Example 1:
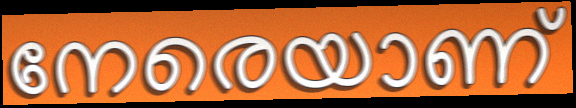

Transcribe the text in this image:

നേരെയാണ്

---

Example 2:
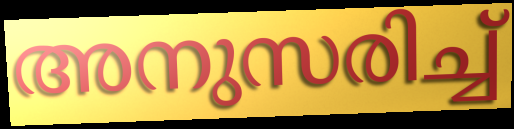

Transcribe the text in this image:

അനുസരിച്ച്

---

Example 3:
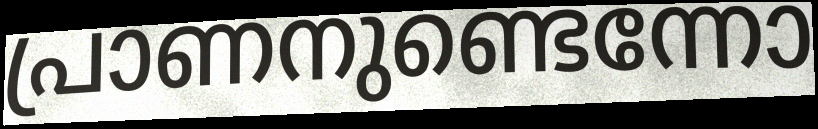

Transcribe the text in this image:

പ്രാണനുണ്ടെന്നോ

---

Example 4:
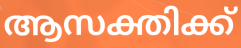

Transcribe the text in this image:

ആസക്തിക്ക്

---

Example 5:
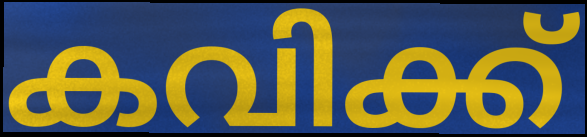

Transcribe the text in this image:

കവിക്ക്